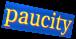
paucity